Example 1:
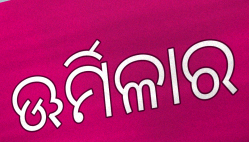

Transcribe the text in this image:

ଊର୍ମିଳାର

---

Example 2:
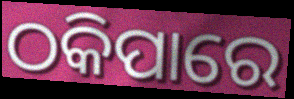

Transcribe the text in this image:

ଠକିପାରେ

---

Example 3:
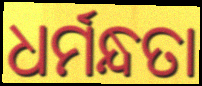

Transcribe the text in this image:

ଧର୍ମନ୍ଧତା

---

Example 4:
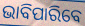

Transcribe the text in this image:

ଭାବିପାରିବେ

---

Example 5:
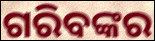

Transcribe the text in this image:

ଗରିବଙ୍କର